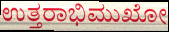
ಉತ್ತರಾಭಿಮುಖೋ